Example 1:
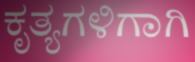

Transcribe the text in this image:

ಕೃತ್ಯಗಳಿಗಾಗಿ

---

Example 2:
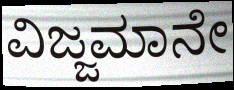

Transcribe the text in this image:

ವಿಜ್ಜಮಾನೇ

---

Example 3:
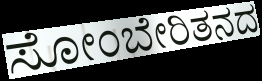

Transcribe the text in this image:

ಸೋಂಬೇರಿತನದ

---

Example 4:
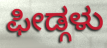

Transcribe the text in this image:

ಫೀಡ್ಗಳು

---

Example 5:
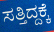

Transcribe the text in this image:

ಸತ್ತಿದ್ದಕ್ಕೆ